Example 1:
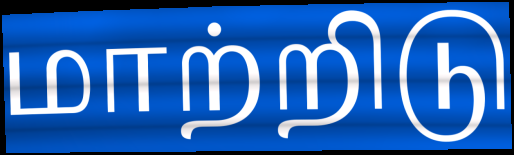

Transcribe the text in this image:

மாற்றிடு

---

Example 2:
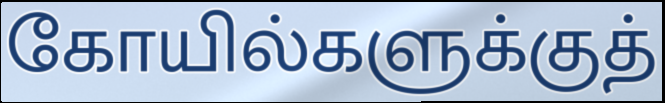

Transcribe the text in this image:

கோயில்களுக்குத்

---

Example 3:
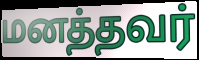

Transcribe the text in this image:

மனத்தவர்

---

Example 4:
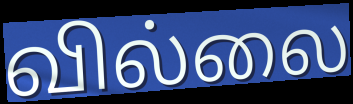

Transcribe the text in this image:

வில்லை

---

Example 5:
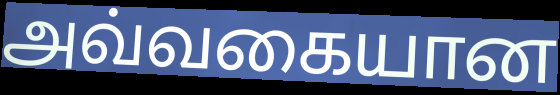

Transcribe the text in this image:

அவ்வகையான